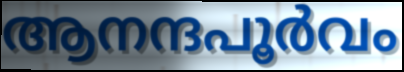
ആനന്ദപൂർവം